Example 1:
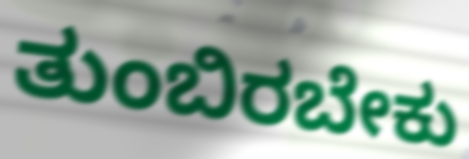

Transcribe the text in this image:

ತುಂಬಿರಬೇಕು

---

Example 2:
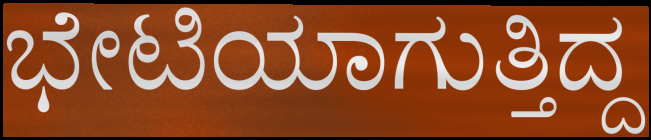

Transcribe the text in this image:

ಭೇಟಿಯಾಗುತ್ತಿದ್ದ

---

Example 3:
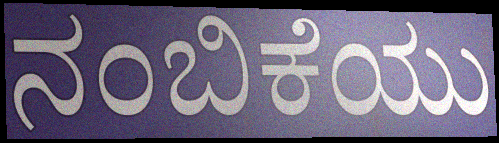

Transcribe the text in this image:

ನಂಬಿಕೆಯು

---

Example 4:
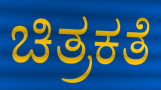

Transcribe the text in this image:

ಚಿತ್ರಕತೆ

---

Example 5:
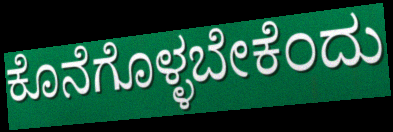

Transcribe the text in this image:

ಕೊನೆಗೊಳ್ಳಬೇಕೆಂದು